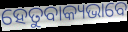
ହେତୁବାକ୍ୟଭାବେ